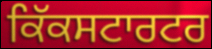
ਕਿੱਕਸਟਾਰਟਰ